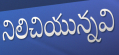
నిలిచియున్నవి